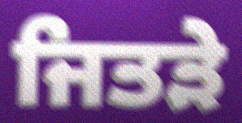
ਜਿਤੜੇ